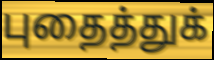
புதைத்துக்